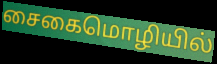
சைகைமொழியில்